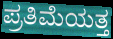
ಪ್ರತಿಮೆಯತ್ತ